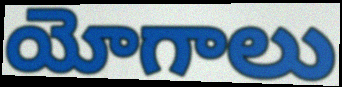
యోగాలు